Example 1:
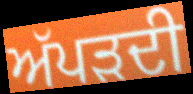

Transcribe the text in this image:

ਅੱਪੜਦੀ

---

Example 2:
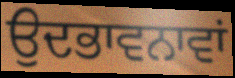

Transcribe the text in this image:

ਉਦਭਾਵਨਾਵਾਂ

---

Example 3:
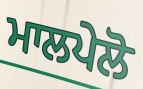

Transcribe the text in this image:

ਮਾਲਪੇਲੋ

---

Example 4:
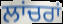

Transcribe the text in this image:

ਲਾਂਚਰਾਂ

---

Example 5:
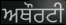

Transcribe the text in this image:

ਅਥੌਰਟੀ